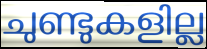
ചുണ്ടുകളില്ല